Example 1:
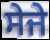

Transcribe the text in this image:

ਸੇਜੇ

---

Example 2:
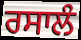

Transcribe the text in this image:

ਰਸਾਲੰ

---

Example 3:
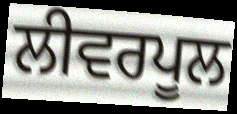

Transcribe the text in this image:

ਲੀਵਰਪੂਲ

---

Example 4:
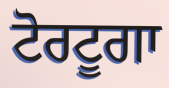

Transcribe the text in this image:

ਟੋਰਟੂਗਾ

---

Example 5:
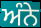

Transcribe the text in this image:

ਅੰਨੇ